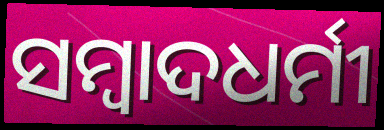
ସମ୍ବାଦଧର୍ମୀ